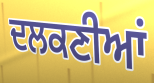
ਦਲਕਣੀਆਂ